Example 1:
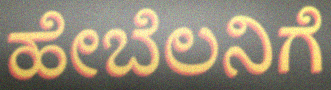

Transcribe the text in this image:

ಹೇಬೆಲನಿಗೆ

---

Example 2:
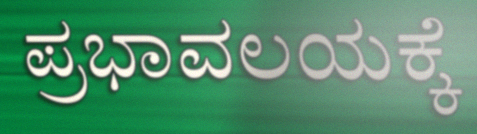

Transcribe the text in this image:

ಪ್ರಭಾವಲಯಕ್ಕೆ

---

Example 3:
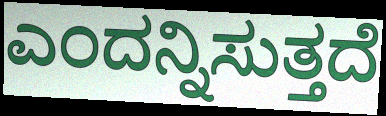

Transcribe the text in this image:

ಎಂದನ್ನಿಸುತ್ತದೆ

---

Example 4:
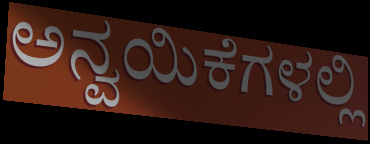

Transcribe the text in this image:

ಅನ್ವಯಿಕೆಗಳಲ್ಲಿ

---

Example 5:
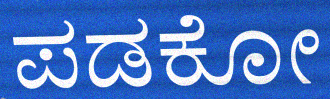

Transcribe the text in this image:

ಪಡಕೋ